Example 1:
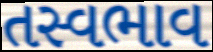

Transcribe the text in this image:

તસ્વભાવ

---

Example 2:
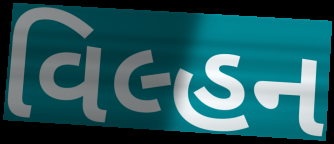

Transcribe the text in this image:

વિલ્હન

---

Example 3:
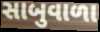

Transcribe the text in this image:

સાબુવાળા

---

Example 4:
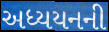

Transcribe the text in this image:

અધ્યયનની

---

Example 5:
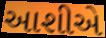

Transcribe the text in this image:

આશીએ